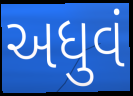
અધુવં